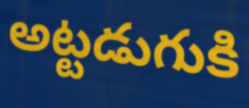
అట్టడుగుకి